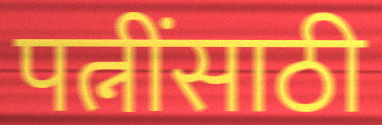
पत्नींसाठी